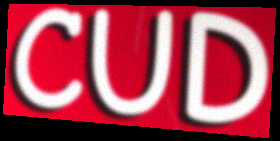
CUD